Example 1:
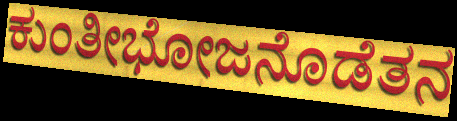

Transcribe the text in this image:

ಕುಂತೀಭೋಜನೊಡೆತನ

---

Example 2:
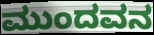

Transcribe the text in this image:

ಮುಂದವನ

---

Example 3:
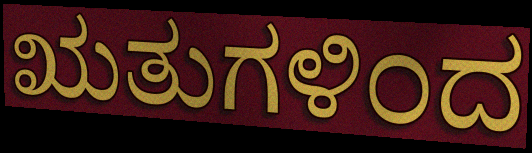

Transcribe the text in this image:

ಋತುಗಳಿಂದ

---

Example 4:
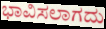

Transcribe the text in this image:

ಭಾವಿಸಲಾಗದು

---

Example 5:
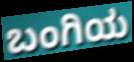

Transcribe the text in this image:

ಬಂಗಿಯ